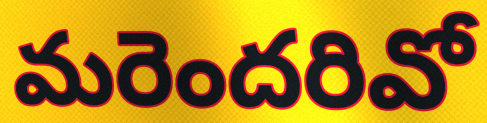
మరెందరివో